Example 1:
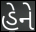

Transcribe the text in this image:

હેને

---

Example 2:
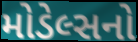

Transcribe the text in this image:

મોડેલ્સનો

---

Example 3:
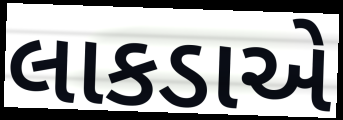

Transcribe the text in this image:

લાકડાએ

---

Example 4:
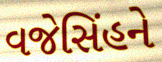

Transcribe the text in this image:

વજેસિંહને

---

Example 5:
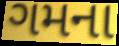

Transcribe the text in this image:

ગમના